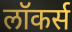
लॉकर्स